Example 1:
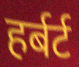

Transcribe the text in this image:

हर्बर्ट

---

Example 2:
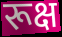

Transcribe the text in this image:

रूक्ष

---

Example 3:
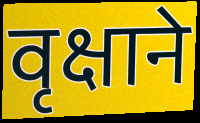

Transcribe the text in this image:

वृक्षाने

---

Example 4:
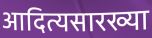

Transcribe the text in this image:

आदित्यसारख्या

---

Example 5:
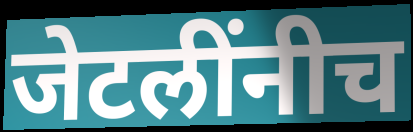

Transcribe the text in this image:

जेटलींनीच